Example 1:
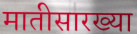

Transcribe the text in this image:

मातीसारख्या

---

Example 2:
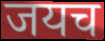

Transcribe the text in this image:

जयच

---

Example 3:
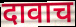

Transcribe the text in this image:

दावाच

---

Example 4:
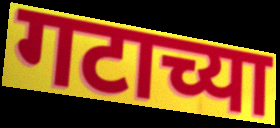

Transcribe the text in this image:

गटाच्या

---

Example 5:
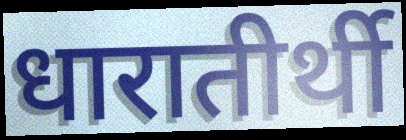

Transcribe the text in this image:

धारातीर्थी